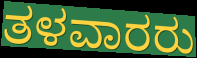
ತಳವಾರರು